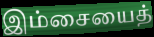
இம்சையைத்